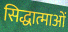
सिद्धात्माओं